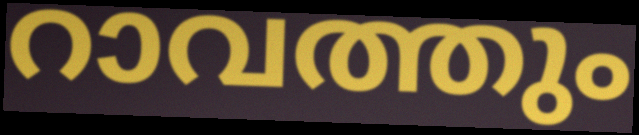
റാവത്തും